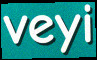
veyi